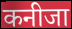
कनीजा